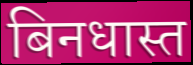
बिनधास्त